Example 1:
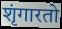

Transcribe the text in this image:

शृंगारतो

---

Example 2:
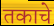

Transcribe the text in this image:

तकाचे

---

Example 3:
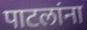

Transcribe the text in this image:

पाटलांना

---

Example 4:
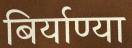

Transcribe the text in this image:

बिर्याण्या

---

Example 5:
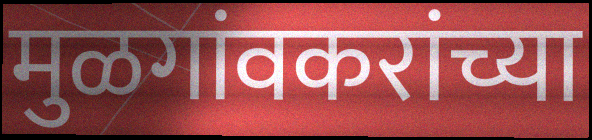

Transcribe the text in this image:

मुळगांवकरांच्या